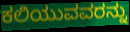
ಕಲಿಯುವವರನ್ನು